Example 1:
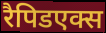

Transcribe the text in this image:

रैपिडएक्स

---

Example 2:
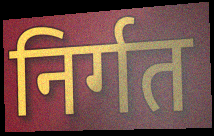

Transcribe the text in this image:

निर्गत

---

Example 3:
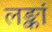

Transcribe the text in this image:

लङ्कां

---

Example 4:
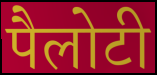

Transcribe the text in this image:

पैलोटी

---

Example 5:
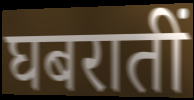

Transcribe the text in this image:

घबरातीं